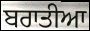
ਬਰਾਤੀਆ